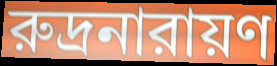
রুদ্রনারায়ণ